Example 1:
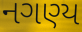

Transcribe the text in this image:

નગણ્ય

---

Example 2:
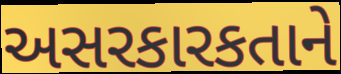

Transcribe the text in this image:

અસરકારકતાને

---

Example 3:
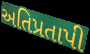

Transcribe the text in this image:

અતિપ્રતાપી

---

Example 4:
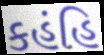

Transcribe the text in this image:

કહંહિ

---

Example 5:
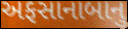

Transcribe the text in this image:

અફસાનાબાનુ